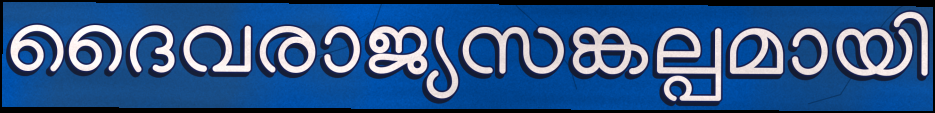
ദൈവരാജ്യസങ്കല്പമായി